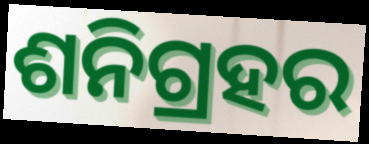
ଶନିଗ୍ରହର